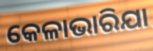
କେଳାଭାରିଯା